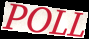
POLL